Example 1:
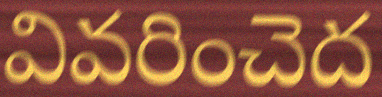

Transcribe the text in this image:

వివరించెద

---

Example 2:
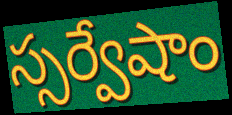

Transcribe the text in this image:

స్సర్వేషాం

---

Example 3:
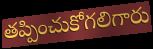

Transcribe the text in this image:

తప్పించుకోగలిగారు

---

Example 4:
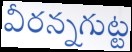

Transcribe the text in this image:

వీరన్నగుట్ట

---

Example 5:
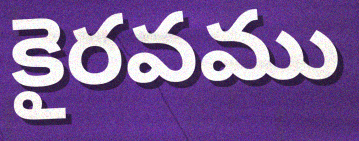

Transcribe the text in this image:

కైరవము